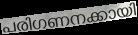
പരിഗണനക്കായി